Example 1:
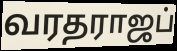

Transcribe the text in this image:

வரதராஜப்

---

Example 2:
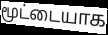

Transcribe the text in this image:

மூட்டையாக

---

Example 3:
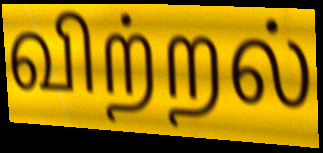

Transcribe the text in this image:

விற்றல்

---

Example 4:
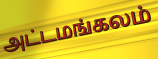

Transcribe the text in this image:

அட்டமங்கலம்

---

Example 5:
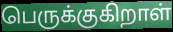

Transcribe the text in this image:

பெருக்குகிறாள்